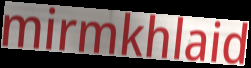
mirmkhlaid